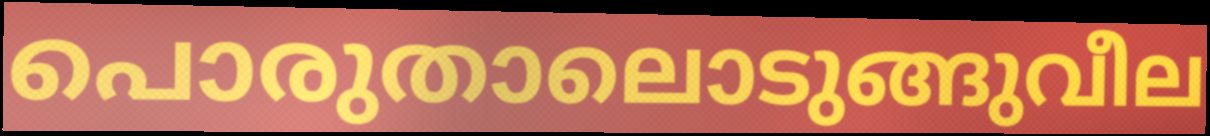
പൊരുതാലൊടുങ്ങുവീല